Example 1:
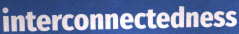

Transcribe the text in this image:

interconnectedness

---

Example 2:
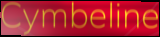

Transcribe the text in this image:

Cymbeline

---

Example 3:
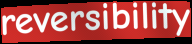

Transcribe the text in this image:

reversibility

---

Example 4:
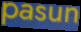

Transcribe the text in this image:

pasun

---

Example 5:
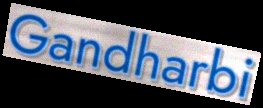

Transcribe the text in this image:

Gandharbi